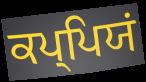
ਕਪ੍ਪਿਯਂ